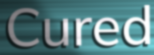
Cured